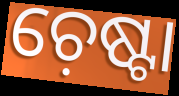
ଚ଼େଷ୍ଟା